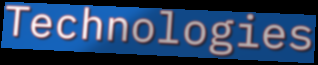
Technologies